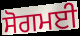
ਸੋਗਮਈ